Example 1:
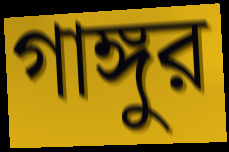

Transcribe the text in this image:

গাঙ্গুর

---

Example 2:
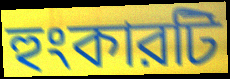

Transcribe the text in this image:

হুংকারটি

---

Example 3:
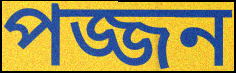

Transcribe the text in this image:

পজ্জন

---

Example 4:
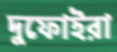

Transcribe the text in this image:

দুফোইরা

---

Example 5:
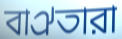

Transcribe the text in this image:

বাঐতারা